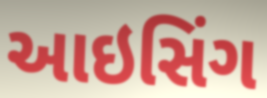
આઇસિંગ